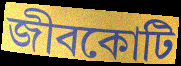
জীবকোটি